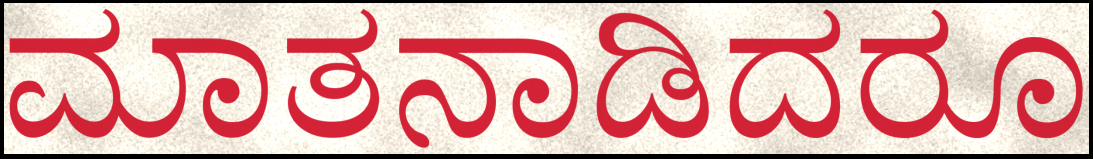
ಮಾತನಾಡಿದರೂ